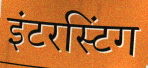
इंटरस्टिंग